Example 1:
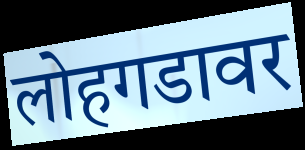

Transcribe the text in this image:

लोहगडावर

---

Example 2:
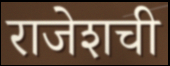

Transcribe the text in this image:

राजेशची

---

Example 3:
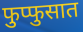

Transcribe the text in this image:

फुप्फुसात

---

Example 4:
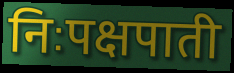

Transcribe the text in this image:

निःपक्षपाती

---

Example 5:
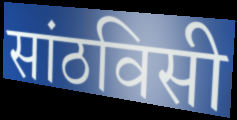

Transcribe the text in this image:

सांठविसी